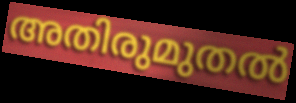
അതിരുമുതൽ